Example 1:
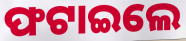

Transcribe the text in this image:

ଫଟାଇଲେ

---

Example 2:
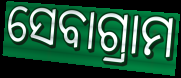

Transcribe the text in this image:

ସେବାଗ୍ରାମ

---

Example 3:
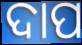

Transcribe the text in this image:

ଦାପ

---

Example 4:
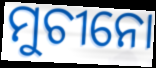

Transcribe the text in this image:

ମୁଚୀନୋ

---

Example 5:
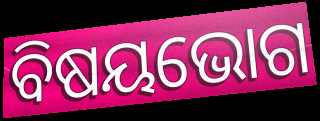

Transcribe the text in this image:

ବିଷୟଭୋଗ